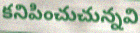
కనిపించుచున్నవి